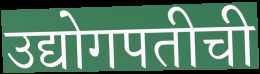
उद्योगपतीची